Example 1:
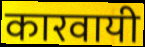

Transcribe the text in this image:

कारवायी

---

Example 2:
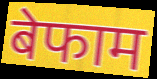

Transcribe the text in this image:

बेफाम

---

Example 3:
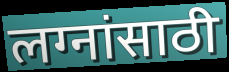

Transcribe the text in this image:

लग्नांसाठी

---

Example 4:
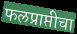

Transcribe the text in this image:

फलप्राप्तीचा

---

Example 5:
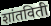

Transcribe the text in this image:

शांतविती